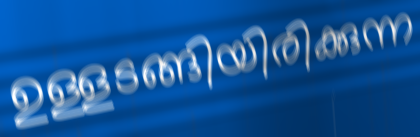
ഉള്ളടങ്ങിയിരിക്കുന്ന